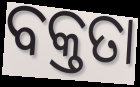
ବକ୍ତତା